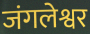
जंगलेश्वर